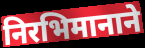
निरभिमानाने